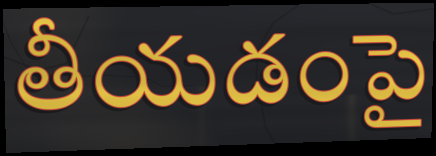
తీయడంపై